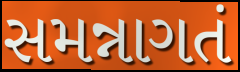
સમન્નાગતં